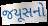
જયૂસનો